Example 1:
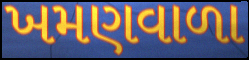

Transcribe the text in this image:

ખમણવાળા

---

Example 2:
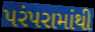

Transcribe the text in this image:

પરંપરામાંથી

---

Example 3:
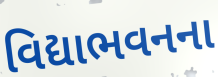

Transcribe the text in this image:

વિદ્યાભવનના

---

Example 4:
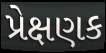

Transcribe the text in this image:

પ્રેક્ષણક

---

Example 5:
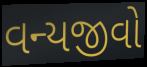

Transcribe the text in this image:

વન્યજીવો